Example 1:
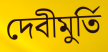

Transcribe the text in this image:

দেবীমুর্তি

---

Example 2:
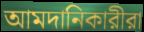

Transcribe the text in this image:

আমদানিকারীরা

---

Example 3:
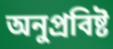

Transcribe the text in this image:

অনুপ্রবিষ্ট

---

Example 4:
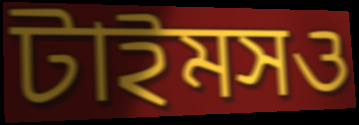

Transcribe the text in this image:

টাইমসও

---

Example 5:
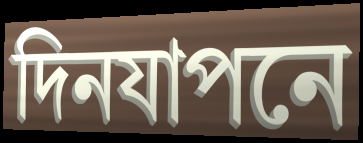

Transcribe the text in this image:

দিনযাপনে